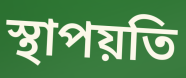
স্থাপয়তি